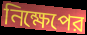
নিক্ষেপের